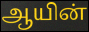
ஆயின்